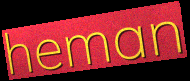
heman